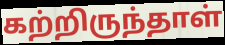
கற்றிருந்தாள்